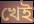
খেই